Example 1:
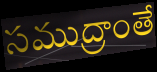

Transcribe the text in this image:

సముద్రాంతే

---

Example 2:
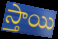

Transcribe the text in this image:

స్తాయి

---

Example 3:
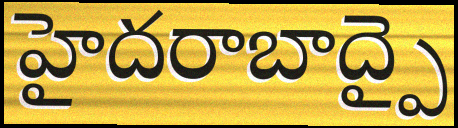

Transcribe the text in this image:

హైదరాబాద్పై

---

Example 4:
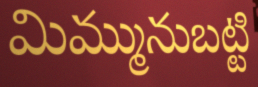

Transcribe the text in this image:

మిమ్మునుబట్టి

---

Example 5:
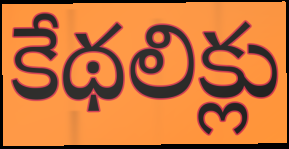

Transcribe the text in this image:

కేథలిక్లు